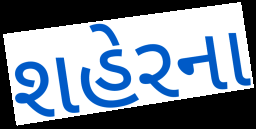
શહેરના